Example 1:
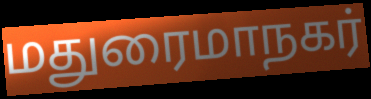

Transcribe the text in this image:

மதுரைமாநகர்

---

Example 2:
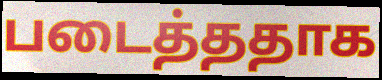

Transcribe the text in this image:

படைத்ததாக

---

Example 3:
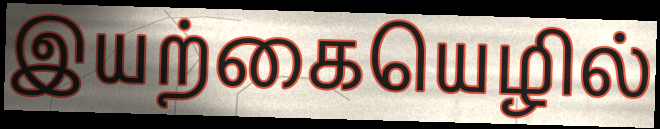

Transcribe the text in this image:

இயற்கையெழில்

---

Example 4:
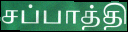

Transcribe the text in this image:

சப்பாத்தி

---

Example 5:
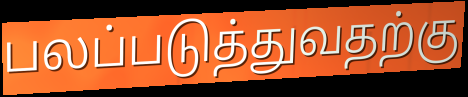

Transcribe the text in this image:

பலப்படுத்துவதற்கு